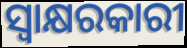
ସ୍ୱାକ୍ଷରକାରୀ